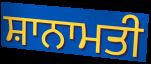
ਸ਼ਾਨਾਮਤੀ